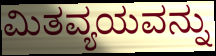
ಮಿತವ್ಯಯವನ್ನು